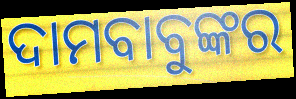
ଦାମବାବୁଙ୍କର